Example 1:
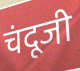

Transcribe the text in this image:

चंदूजी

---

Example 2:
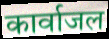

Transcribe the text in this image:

कार्वाजल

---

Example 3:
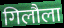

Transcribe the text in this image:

गिलौला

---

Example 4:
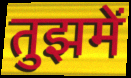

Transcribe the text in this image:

तुझमें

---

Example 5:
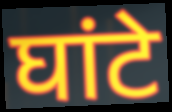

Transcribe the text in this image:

घांटे